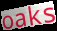
oaks